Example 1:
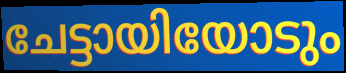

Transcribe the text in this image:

ചേട്ടായിയോടും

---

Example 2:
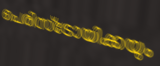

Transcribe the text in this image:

പെരിസ്ട്രോയിക്കയും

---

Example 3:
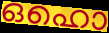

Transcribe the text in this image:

ഒഹൊ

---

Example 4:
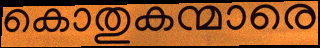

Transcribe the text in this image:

കൊതുകന്മാരെ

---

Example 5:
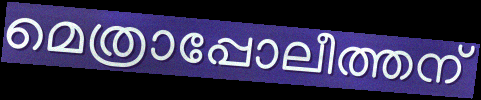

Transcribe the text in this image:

മെത്രാപ്പോലീത്തന്